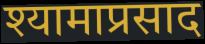
श्यामाप्रसाद